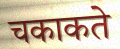
चकाकते